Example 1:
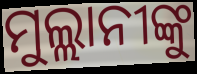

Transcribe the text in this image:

ମୁଲ୍ଲାନୀଙ୍କୁ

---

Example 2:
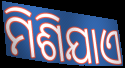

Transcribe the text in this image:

ମିଶିଯାଏ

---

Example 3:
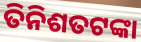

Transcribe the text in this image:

ତିନିଶତଟଙ୍କା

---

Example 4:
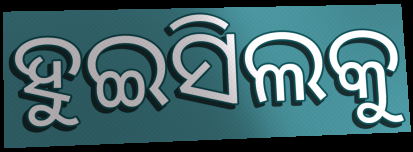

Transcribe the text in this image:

ହୁଇସିଲକୁ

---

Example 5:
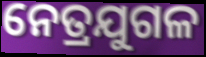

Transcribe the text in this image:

ନେତ୍ରଯୁଗଳ